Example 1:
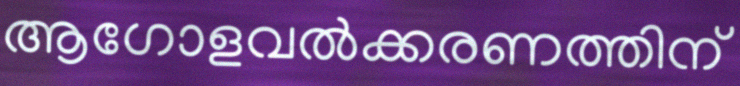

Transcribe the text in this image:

ആഗോളവൽക്കരണത്തിന്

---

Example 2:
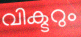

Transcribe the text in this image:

വിക്ടറും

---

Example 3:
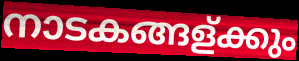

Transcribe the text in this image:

നാടകങ്ങള്ക്കും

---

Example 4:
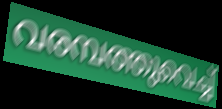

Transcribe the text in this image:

വരമ്പത്തുവെച്ച്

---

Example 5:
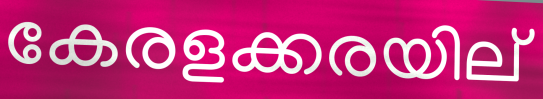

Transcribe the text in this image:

കേരളക്കരയില്